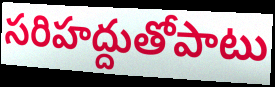
సరిహద్దుతోపాటు